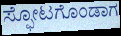
ಸ್ಫೋಟಗೊಂಡಾಗ